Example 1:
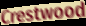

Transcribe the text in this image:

Crestwood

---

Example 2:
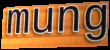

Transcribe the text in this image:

mung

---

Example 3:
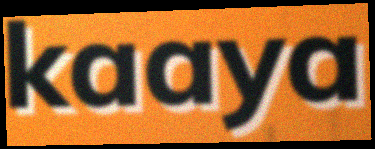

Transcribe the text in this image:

kaaya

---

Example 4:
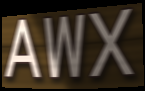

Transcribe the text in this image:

AWX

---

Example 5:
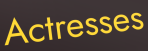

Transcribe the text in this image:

Actresses